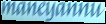
maneyannu